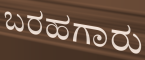
ಬರಹಗಾರು